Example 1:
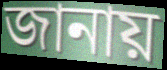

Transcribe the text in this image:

জানায়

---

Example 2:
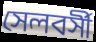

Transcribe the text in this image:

সেলবর্সী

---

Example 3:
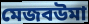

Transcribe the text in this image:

মেজবউমা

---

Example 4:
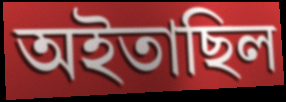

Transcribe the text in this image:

অইতাছিল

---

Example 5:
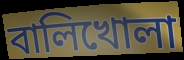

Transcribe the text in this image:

বালিখোলা